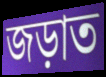
জড়াত